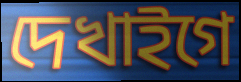
দেখাইগে